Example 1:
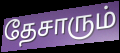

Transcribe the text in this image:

தேசாரும்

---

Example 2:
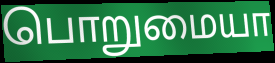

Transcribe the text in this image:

பொறுமையா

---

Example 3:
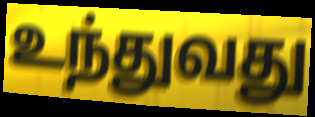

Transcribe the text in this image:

உந்துவது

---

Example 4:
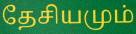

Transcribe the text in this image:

தேசியமும்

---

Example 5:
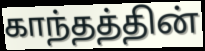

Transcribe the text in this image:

காந்தத்தின்